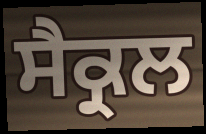
ਸੈਕ੍ਰਲ